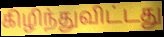
கிழிந்துவிட்டது